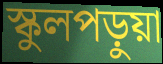
স্কুলপড়ুয়া